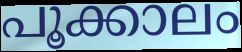
പൂക്കാലം